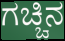
ಗಚ್ಚಿನ